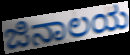
ಜಿನಾಲಯ